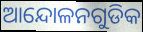
ଆନ୍ଦୋଳନଗୁଡିକ